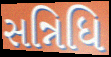
સન્નિધિ